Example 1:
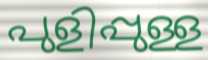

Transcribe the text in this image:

പുളിപ്പുള്ള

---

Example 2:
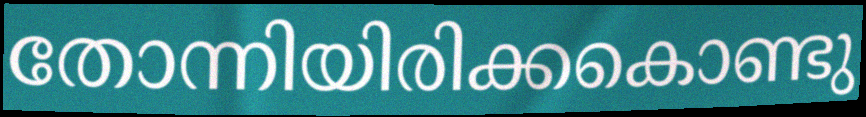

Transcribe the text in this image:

തോന്നിയിരിക്കകൊണ്ടു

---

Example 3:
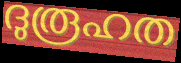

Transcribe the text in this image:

ദുരൂഹത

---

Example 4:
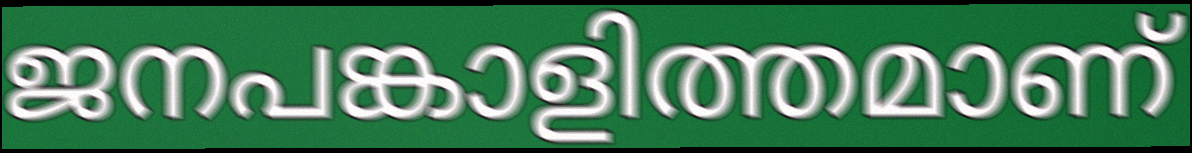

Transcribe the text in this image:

ജനപങ്കാളിത്തമാണ്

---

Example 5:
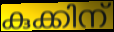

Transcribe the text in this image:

കുക്കിന്